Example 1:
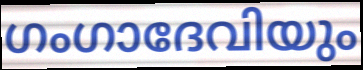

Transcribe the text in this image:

ഗംഗാദേവിയും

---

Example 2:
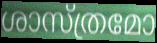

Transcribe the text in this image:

ശാസ്ത്രമോ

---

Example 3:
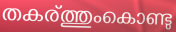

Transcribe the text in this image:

തകര്ത്തുംകൊണ്ടു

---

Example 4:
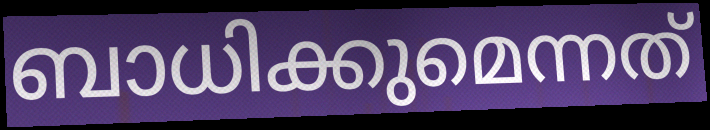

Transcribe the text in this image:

ബാധിക്കുമെന്നത്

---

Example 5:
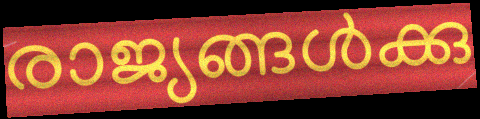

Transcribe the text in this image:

രാജ്യങ്ങൾക്കു